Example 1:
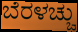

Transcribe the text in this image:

ಬೆರಳಚ್ಚು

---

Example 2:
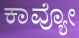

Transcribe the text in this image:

ಕಾವ್ಯೋ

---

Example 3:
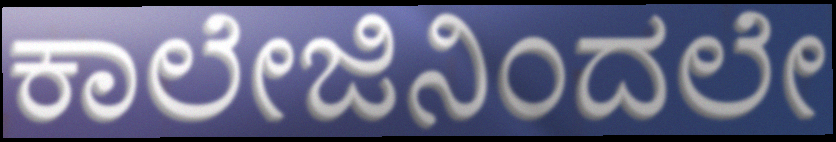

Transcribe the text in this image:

ಕಾಲೇಜಿನಿಂದಲೇ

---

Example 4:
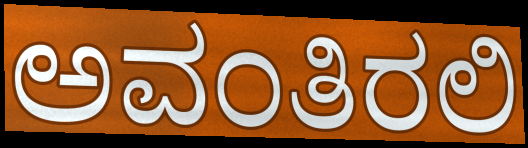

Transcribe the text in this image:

ಅವಂತಿರಲಿ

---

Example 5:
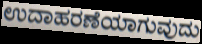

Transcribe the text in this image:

ಉದಾಹರಣೆಯಾಗುವುದು